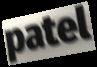
patel